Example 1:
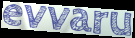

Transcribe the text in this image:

evvaru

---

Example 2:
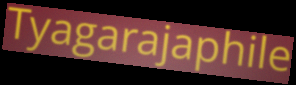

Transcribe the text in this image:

Tyagarajaphile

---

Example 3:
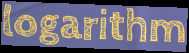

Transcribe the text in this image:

logarithm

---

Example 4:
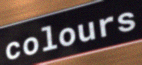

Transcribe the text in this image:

colours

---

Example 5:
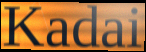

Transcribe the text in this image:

Kadai